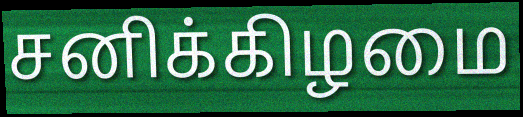
சனிக்கிழமை